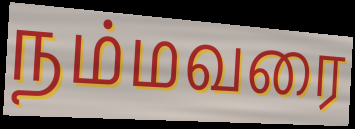
நம்மவரை